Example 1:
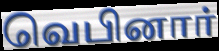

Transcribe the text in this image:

வெபினார்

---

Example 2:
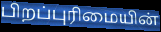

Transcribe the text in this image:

பிறப்புரிமையின்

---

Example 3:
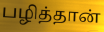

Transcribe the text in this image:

பழித்தான்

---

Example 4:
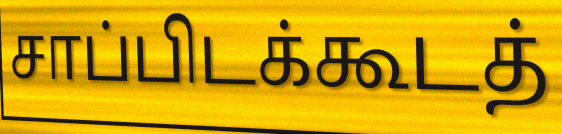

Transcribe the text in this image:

சாப்பிடக்கூடத்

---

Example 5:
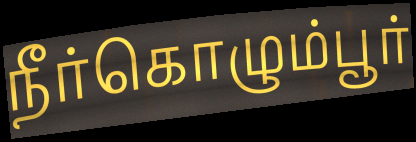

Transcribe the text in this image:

நீர்கொழும்பூர்